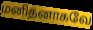
மனிதனாகவே